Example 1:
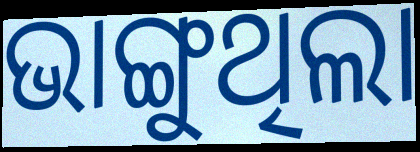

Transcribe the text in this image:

ଭାଙ୍ଗୁଥିଲା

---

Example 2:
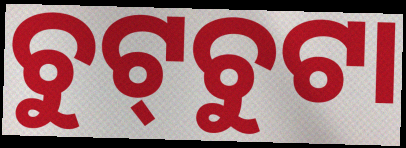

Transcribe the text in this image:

ଚୁଟ୍‌ଚୁଟା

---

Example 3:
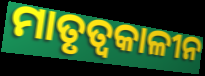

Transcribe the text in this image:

ମାତୃତ୍ୱକାଳୀନ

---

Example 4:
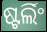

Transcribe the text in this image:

ଷ୍ଟର୍ଲିଂ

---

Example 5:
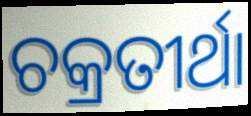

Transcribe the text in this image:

ଚକ୍ରତୀର୍ଥା